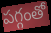
పగ్గంతో